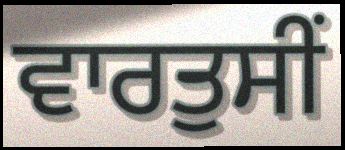
ਵਾਰਤੁਸੀਂ